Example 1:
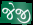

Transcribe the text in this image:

જેજી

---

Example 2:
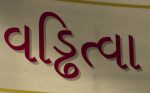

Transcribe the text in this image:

વડ્ઢિત્વા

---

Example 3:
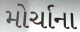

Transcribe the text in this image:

મોર્ચાના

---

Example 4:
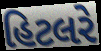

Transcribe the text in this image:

હિટલરે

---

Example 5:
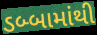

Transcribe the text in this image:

ડબ્બામાંથી